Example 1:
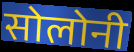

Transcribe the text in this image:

सोलोनी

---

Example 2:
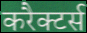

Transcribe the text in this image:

करैक्टर्स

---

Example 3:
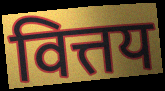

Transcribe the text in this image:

वित्तय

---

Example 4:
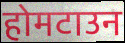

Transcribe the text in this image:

होमटाउन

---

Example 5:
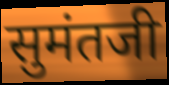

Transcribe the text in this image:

सुमंतजी